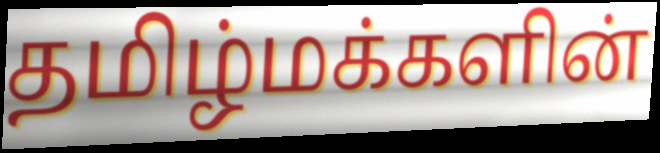
தமிழ்மக்களின்